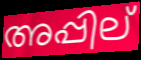
അപ്പില്